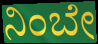
ನಿಂಬೇ